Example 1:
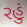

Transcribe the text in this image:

રહું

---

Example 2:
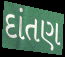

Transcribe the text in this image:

દાંતણ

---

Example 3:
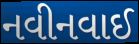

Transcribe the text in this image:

નવીનવાઈ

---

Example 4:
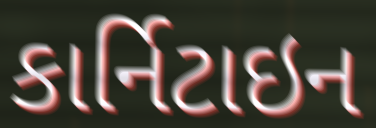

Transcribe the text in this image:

કાર્નિટાઇન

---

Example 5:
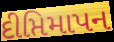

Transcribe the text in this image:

દીપ્તિમાપન